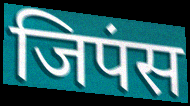
जिपंस